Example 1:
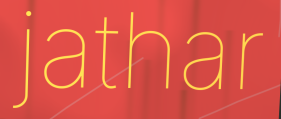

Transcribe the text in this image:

jathar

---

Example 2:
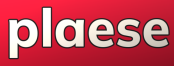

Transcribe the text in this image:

plaese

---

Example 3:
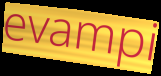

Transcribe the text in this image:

evampi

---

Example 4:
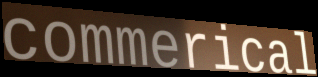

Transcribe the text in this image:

commerical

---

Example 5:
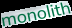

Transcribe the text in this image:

monolith